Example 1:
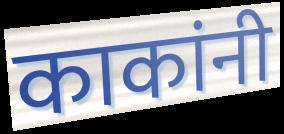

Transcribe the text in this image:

काकांनी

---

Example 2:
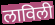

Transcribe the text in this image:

लाविली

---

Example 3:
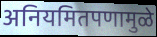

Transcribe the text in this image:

अनियमितपणामुळे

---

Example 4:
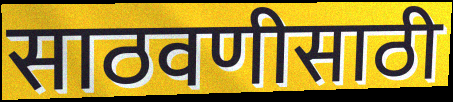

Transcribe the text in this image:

साठवणीसाठी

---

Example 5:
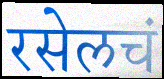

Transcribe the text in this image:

रसेलचं